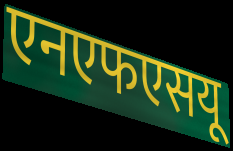
एनएफएसयू